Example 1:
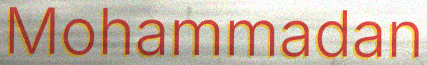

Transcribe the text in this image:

Mohammadan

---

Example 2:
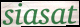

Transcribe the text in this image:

siasat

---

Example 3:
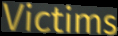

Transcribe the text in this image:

Victims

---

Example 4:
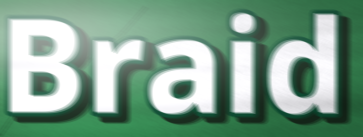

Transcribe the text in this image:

Braid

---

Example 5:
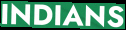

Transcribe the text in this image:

INDIANS